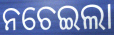
ନଚେଇଲା